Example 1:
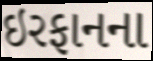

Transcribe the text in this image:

ઇરફાનના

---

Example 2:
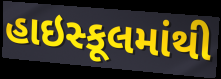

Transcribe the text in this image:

હાઇસ્કૂલમાંથી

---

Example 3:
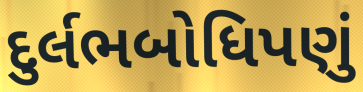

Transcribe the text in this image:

દુર્લભબોધિપણું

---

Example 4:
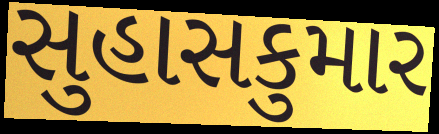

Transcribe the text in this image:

સુહાસકુમાર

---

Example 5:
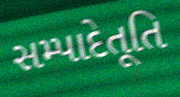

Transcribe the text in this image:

સમ્પાદેતૂતિ